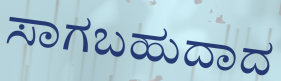
ಸಾಗಬಹುದಾದ